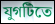
যুগটিতে